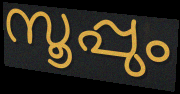
സൂപ്പും